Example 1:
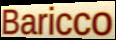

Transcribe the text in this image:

Baricco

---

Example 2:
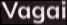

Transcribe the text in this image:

Vagai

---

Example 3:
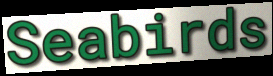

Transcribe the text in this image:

Seabirds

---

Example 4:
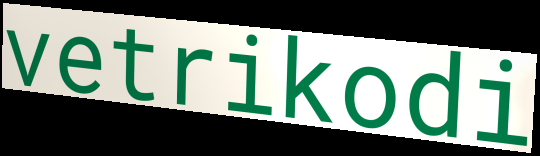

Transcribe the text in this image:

vetrikodi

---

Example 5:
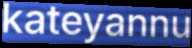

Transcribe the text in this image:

kateyannu